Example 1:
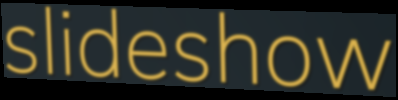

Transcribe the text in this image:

slideshow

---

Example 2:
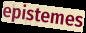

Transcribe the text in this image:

epistemes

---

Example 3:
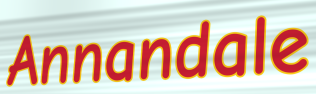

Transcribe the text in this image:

Annandale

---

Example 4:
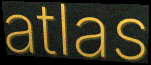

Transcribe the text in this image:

atlas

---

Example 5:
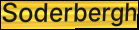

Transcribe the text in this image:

Soderbergh